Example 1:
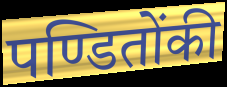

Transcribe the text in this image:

पण्डितोंकी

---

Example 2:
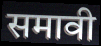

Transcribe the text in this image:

समावी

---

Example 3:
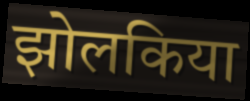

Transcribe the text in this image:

झोलकिया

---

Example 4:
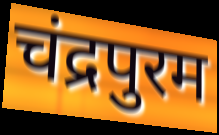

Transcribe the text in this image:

चंद्रपुरम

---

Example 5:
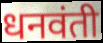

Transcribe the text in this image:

धनवंती